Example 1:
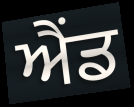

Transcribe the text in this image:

ਐੰਡ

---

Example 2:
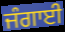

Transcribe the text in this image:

ਜੰਗਾਈ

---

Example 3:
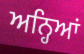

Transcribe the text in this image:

ਅਨ੍ਹਿਆਂ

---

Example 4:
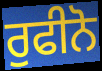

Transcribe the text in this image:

ਰੁਫੀਨੋ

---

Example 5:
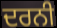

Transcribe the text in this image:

ਦਰਨੀ